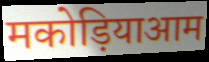
मकोड़ियाआम